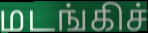
மடங்கிச்